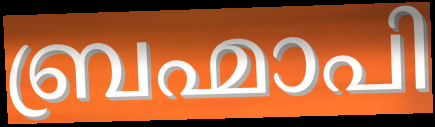
ബ്രഹ്മാപി